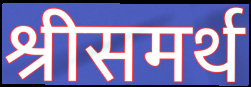
श्रीसमर्थ